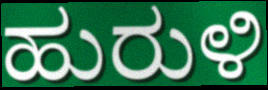
ಹುರುಳಿ